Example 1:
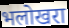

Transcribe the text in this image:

भलोखरा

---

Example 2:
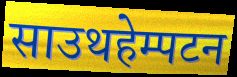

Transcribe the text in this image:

साउथहेम्पटन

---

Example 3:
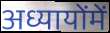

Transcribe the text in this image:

अध्यायोंमें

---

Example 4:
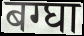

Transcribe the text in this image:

बग्घा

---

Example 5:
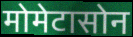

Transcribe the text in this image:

मोमेटासोन